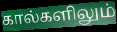
கால்களிலும்